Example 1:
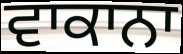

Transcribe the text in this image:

ਵਾਕਾਨਾ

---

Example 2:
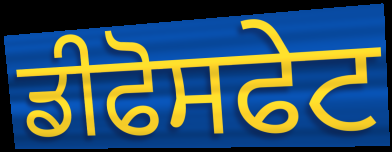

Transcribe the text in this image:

ਡੀਫੋਸਫੇਟ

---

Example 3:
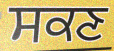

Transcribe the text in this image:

ਸਕਣ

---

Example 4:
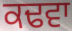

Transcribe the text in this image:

ਕਢਵਾ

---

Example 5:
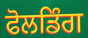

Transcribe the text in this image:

ਫੋਲਡਿੰਗ